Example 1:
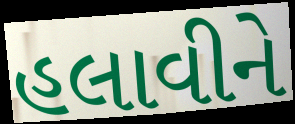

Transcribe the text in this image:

હલાવીને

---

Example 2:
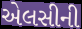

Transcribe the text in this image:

એલસીની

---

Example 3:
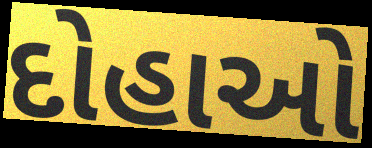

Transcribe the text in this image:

દોહાઓ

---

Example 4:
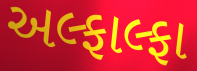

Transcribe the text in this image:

અલ્ફાલ્ફા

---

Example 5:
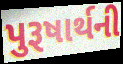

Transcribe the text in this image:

પુરૂષાર્થની